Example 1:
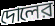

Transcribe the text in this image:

দোলের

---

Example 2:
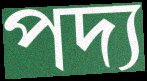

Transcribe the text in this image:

পদ্য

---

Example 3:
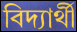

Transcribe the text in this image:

বিদ্যার্থী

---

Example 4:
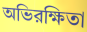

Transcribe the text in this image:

অভিরক্ষিতা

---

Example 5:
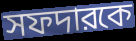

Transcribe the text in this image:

সফদারকে